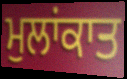
ਮੁਲਾਂਕਾਤ